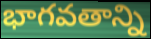
భాగవతాన్ని